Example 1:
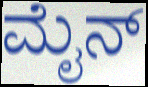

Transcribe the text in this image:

ಮೈನ್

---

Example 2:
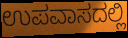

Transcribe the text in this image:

ಉಪವಾಸದಲ್ಲಿ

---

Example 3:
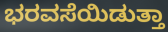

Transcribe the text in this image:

ಭರವಸೆಯಿಡುತ್ತಾ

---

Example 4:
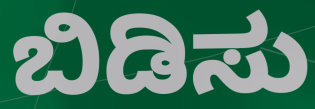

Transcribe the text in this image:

ಬಿಡಿಸು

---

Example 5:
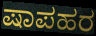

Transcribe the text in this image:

ಷಾಪಹರ